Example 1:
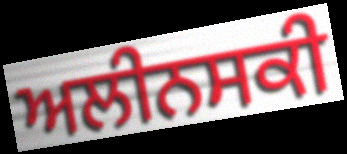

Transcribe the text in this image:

ਅਲੀਨਸਕੀ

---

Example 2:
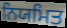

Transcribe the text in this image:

ਨਿਯਮਿਤ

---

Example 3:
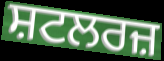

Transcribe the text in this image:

ਸ਼ਟਲਰਜ਼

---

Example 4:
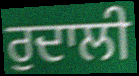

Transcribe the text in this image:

ਰੁਦਾਲੀ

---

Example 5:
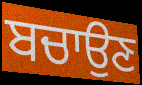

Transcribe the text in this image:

ਬਚਾਉਣ